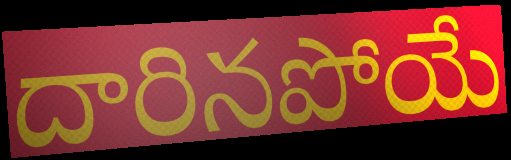
దారినపోయే